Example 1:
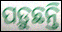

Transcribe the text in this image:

ପଡ଼ୁଛନ୍ତି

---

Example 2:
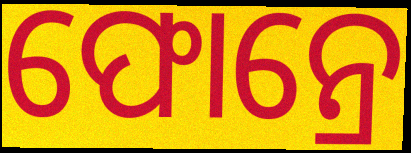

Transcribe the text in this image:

ଫୋନ୍ରେ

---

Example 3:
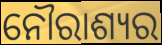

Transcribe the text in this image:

ନୌରାଶ୍ୟର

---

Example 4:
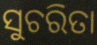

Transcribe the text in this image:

ସୁଚରିତା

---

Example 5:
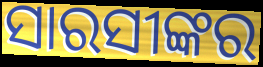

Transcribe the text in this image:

ସାରସୀଙ୍କର